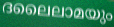
ദലൈലാമയും